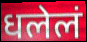
धलेलं